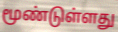
மூண்டுள்ளது